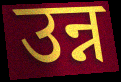
उन्न